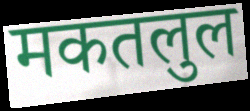
मकतलुल